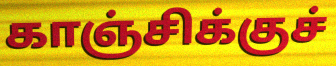
காஞ்சிக்குச்